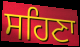
ਸਹਿਣਾ